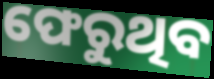
ଫେରୁଥିବ